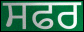
ਸਫਰ